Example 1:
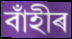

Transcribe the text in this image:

বাঁহীৰ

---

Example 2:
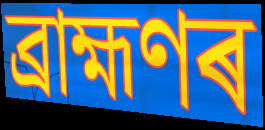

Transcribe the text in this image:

ব্ৰাহ্মণৰ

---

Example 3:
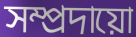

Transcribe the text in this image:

সম্প্ৰদায়ো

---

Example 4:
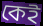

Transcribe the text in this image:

কেই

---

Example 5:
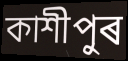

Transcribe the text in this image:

কাশীপুৰ